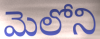
మెలోని